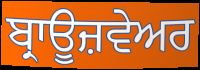
ਬ੍ਰਾਊਜ਼ਵੇਅਰ